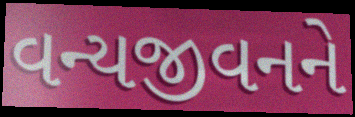
વન્યજીવનને